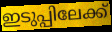
ഇടുപ്പിലേക്ക്